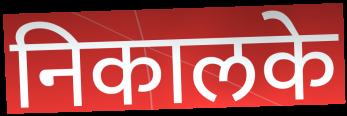
निकालके